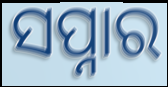
ସପ୍ନାର